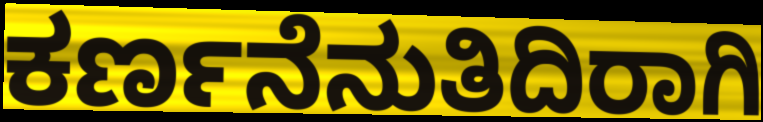
ಕರ್ಣನೆನುತಿದಿರಾಗಿ